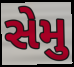
સેમુ